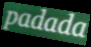
padada